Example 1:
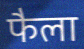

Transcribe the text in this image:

फैला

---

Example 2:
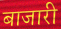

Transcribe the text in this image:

बाजारी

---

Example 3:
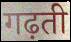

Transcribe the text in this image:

गढ़ती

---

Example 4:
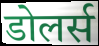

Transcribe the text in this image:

डोलर्स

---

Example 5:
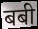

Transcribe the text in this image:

बबी